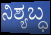
ನಿಶ್ಯಬ್ಧ